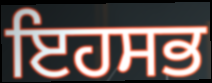
ਇਹਸਭ